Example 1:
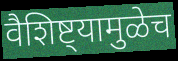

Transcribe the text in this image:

वैशिष्ट्यामुळेच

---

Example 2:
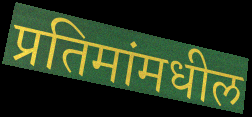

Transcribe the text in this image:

प्रतिमांमधील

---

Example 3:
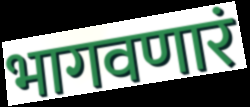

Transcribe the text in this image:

भागवणारं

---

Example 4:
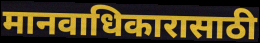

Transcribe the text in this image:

मानवाधिकारासाठी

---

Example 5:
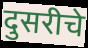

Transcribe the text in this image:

दुसरीचे